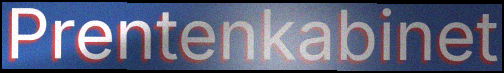
Prentenkabinet